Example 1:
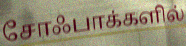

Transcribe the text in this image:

சோஃபாக்களில்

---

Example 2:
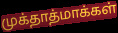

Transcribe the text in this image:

முக்தாத்மாக்கள்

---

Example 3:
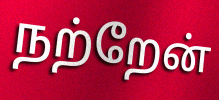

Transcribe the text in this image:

நற்றேன்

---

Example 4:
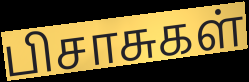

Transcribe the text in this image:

பிசாசுகள்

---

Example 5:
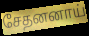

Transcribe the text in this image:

சேதனனாய்